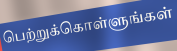
பெற்றுக்கொள்ளுங்கள்